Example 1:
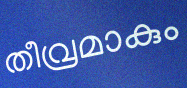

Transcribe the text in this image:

തീവ്രമാകും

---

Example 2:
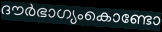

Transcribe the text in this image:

ദൗർഭാഗ്യംകൊണ്ടോ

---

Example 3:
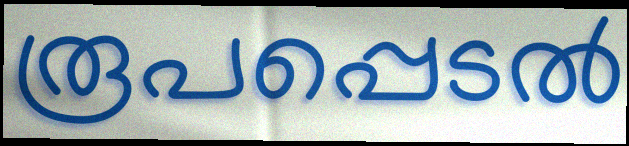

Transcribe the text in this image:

രൂപപ്പെടൽ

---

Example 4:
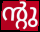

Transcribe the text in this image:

ന്റു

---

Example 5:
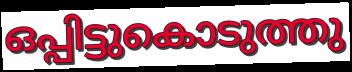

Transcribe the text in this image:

ഒപ്പിട്ടുകൊടുത്തു